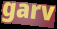
garv